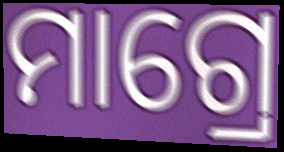
ମାଗ୍ରେ